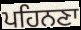
ਪਹਿਨਣਾ